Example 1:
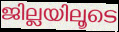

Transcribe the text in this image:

ജില്ലയിലൂടെ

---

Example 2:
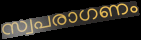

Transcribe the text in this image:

സ്വപരാഗണം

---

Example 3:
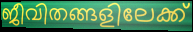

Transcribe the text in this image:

ജീവിതങ്ങളിലേക്ക്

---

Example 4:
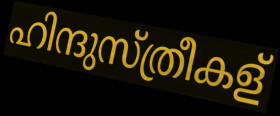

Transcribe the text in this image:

ഹിന്ദുസ്ത്രീകള്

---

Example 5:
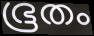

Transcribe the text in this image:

ഭൂതം